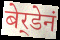
बेर्डेनं